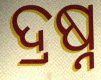
ଦ୍ରଷ୍ନ